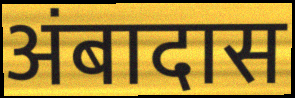
अंबादास